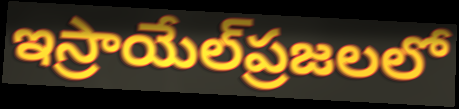
ఇస్రాయేల్‌ప్రజలలో